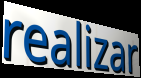
realizar